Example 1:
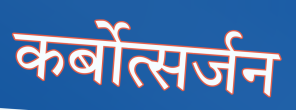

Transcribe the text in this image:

कर्बोत्सर्जन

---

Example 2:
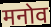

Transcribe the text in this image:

मनोव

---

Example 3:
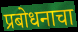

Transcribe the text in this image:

प्रबोधनाचा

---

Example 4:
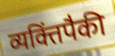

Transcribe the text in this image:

व्यक्तिंपैकी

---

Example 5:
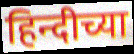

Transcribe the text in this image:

हिन्दीच्या